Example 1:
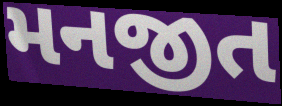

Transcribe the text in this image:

મનજીત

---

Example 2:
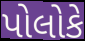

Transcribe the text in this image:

પોલોકે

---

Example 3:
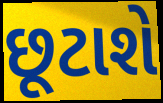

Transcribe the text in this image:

છૂટાશે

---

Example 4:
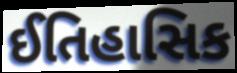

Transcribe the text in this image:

ઈતિહાસિક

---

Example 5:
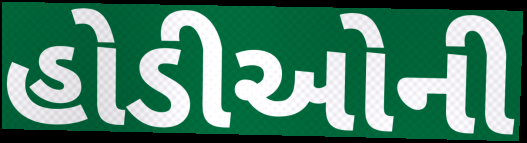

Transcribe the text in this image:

હોડીઓની